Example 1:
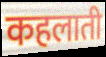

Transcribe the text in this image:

कहलाती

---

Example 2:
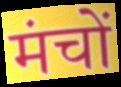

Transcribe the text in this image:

मंचों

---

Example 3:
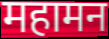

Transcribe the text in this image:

महामन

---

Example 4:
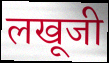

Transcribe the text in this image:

लखूजी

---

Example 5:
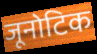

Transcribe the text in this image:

जूनोटिक